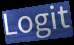
Logit